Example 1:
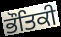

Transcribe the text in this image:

ਭੌਤਿਕੀ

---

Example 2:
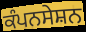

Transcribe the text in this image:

ਕੰਪਨਸੇਸ਼ਨ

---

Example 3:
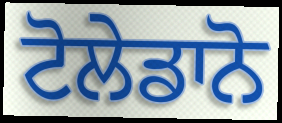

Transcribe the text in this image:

ਟੋਲੇਡਾਨੋ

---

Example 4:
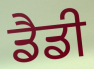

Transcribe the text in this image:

ਡੈਡੀ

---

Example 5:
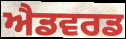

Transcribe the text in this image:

ਐਡਵਰਡ